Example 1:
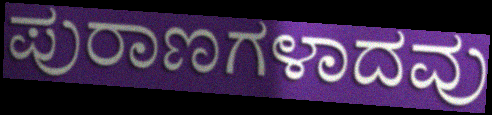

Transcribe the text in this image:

ಪುರಾಣಗಳಾದವು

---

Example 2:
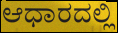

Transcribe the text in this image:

ಆಧಾರದಲ್ಲಿ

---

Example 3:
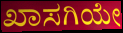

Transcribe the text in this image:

ಖಾಸಗಿಯೇ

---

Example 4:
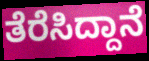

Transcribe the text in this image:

ತೆರೆಸಿದ್ದಾನೆ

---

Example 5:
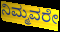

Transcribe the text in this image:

ನಿಮ್ಮವರೇ